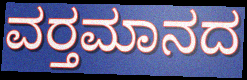
ವರ‍್ತಮಾನದ